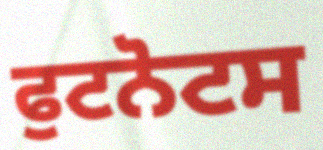
ਫੁਟਨੋਟਸ